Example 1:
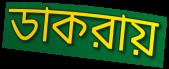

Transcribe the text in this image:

ডাকরায়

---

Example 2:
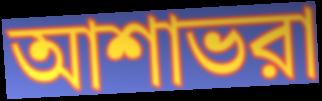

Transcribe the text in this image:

আশাভরা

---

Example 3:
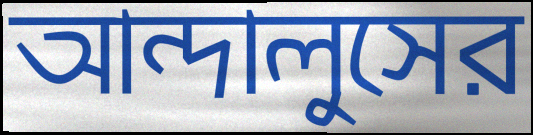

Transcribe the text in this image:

আন্দালুসের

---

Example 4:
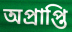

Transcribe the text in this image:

অপ্রাপ্তি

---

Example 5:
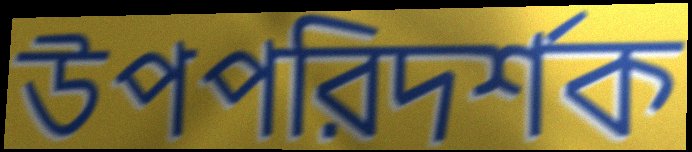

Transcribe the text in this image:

উপপরিদর্শক